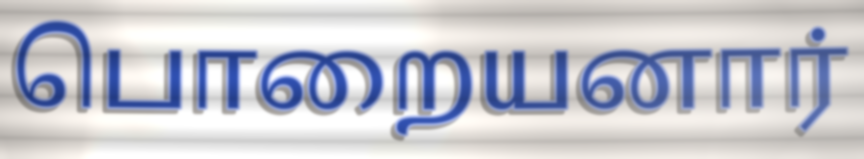
பொறையனார்